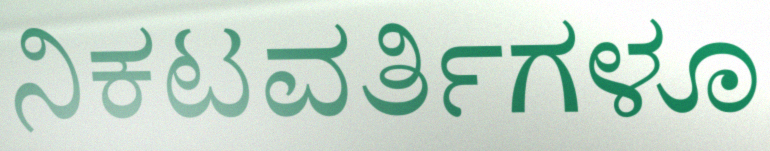
ನಿಕಟವರ್ತಿಗಳೂ